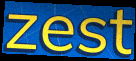
zest